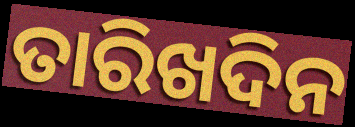
ତାରିଖଦିନ